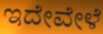
ಇದೇವೇಳೆ